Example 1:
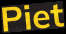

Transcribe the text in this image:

Piet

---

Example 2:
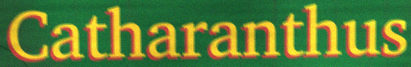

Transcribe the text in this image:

Catharanthus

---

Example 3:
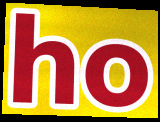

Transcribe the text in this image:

ho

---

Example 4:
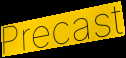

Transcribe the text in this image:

Precast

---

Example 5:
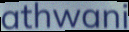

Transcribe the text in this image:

athwani